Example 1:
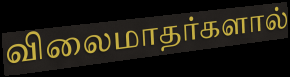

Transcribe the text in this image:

விலைமாதர்களால்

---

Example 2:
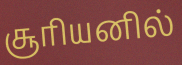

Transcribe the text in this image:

சூரியனில்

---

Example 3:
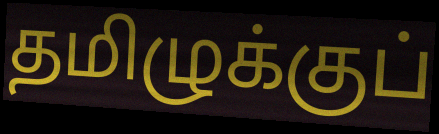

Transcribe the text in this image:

தமிழுக்குப்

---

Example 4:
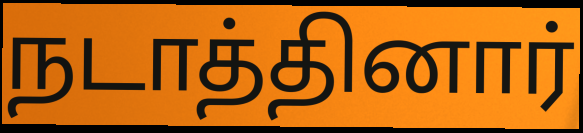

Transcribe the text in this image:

நடாத்தினார்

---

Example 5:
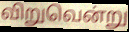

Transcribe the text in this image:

விறுவென்று